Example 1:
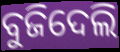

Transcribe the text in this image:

ବୁଜିଦେଲି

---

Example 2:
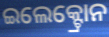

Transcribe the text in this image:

ଇଲେକ୍ଟ୍ରୋନ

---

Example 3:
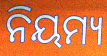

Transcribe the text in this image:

ନିୟମ୍ୟ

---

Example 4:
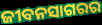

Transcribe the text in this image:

ଜୀବନସାଗରର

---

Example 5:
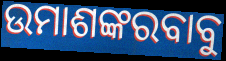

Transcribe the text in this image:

ଉମାଶଙ୍କରବାବୁ